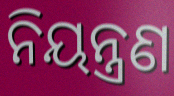
ନିୟନ୍ତ୍ରଣ